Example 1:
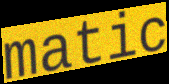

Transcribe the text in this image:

matic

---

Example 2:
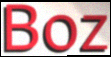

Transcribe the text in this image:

Boz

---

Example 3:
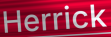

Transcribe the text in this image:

Herrick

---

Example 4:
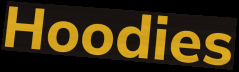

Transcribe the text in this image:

Hoodies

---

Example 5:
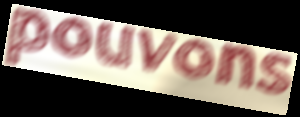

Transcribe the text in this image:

pouvons